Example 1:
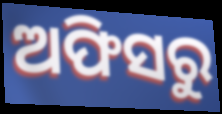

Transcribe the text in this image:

ଅଫିସରୁ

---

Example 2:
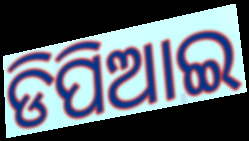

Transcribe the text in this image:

ଡିପିଆଇ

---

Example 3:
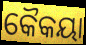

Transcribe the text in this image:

କୈକୟା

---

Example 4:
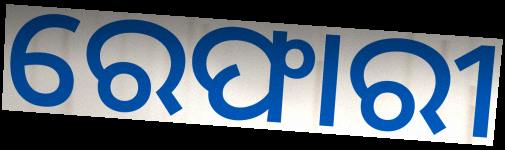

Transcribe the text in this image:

ରେଫାରୀ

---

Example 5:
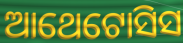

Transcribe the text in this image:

ଆଥେଟୋସିସ